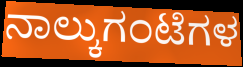
ನಾಲ್ಕುಗಂಟೆಗಳ